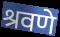
श्रवणे